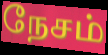
நேசம்